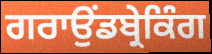
ਗਰਾਉਂਡਬ੍ਰੇਕਿੰਗ